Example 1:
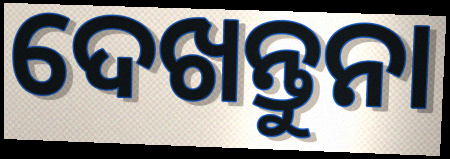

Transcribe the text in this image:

ଦେଖନ୍ତୁନା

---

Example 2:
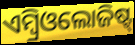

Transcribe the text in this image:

ଏମ୍ବ୍ରିଓଲୋଜିଷ୍ଟ୍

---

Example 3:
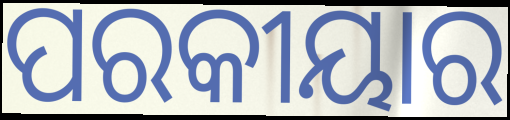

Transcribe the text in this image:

ପରକୀୟାର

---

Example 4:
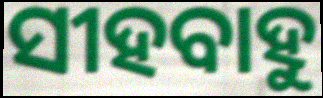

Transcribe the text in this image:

ସୀହବାହୁ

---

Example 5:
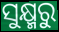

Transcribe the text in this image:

ସୁକ୍ଷ୍ମରୁ